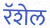
रॅशेल